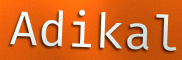
Adikal